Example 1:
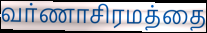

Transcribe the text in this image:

வர்ணாசிரமத்தை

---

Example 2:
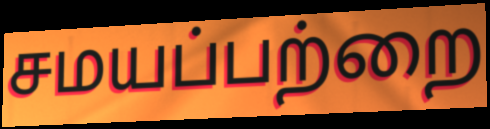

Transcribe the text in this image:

சமயப்பற்றை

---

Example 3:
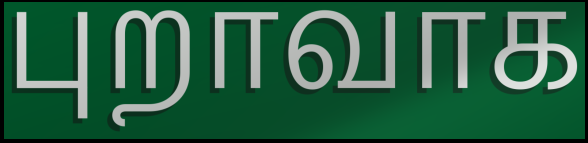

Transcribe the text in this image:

புறாவாக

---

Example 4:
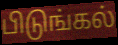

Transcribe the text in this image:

பிடுங்கல்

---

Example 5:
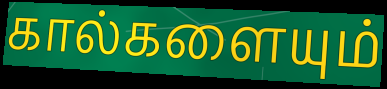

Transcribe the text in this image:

கால்களையும்